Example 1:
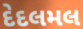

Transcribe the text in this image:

દેદલમલ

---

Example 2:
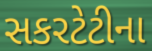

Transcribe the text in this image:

સકરટેટીના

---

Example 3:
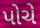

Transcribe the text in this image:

પોચે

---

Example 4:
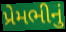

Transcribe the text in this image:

પ્રેમભીનું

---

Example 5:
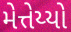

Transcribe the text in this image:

મેત્તેય્યો